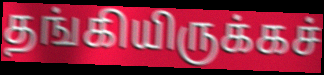
தங்கியிருக்கச்